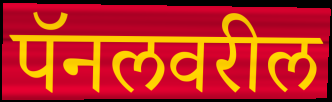
पॅनलवरील